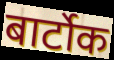
बार्टोक